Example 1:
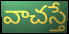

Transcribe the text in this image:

వాచస్తే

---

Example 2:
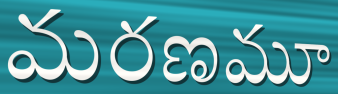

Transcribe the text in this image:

మరణమూ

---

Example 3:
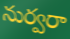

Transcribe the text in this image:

నుర్వరా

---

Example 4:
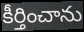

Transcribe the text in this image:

కీర్తించాను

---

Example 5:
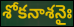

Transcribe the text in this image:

శోకనాశనైః